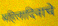
महिलादिनाचे